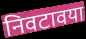
निवटावया